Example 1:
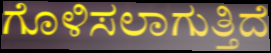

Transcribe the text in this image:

ಗೊಳಿಸಲಾಗುತ್ತಿದೆ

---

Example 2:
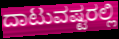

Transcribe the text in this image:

ದಾಟುವಷ್ಟರಲ್ಲಿ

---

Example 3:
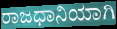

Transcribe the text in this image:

ರಾಜಧಾನಿಯಾಗಿ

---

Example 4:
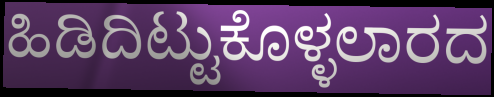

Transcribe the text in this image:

ಹಿಡಿದಿಟ್ಟುಕೊಳ್ಳಲಾರದ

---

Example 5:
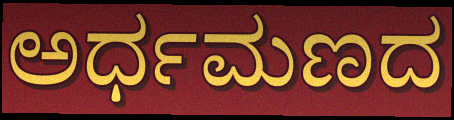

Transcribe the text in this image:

ಅರ್ಧಮಣದ